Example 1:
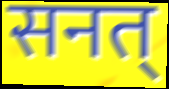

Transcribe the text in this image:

सनत्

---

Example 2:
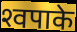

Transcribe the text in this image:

श्वपाके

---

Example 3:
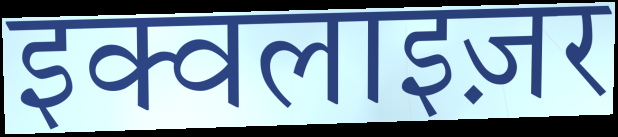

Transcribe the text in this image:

इक्वलाइज़र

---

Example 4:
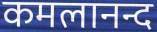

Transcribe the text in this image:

कमलानन्द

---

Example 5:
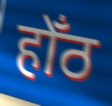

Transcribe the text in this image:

होँठ